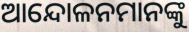
ଆନ୍ଦୋଳନମାନଙ୍କୁ